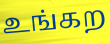
உங்கற